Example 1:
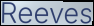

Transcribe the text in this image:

Reeves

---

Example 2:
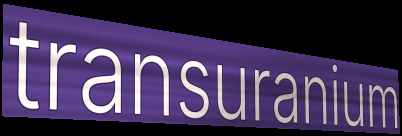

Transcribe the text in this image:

transuranium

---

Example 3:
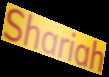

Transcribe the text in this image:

Shariah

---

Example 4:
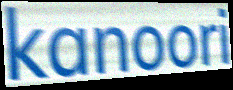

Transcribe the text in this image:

kanoori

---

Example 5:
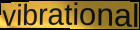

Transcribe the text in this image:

vibrational